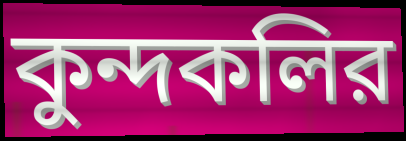
কুন্দকলির